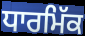
ਧਾਰਮਿੱਕ